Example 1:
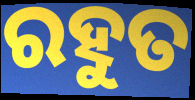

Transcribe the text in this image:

ରହୁତ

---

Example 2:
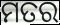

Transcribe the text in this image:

ମତର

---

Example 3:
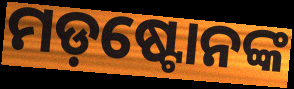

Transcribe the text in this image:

ମଡ଼ଷ୍ଟୋନଙ୍କ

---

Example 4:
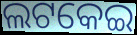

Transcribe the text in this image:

ଲଟକେଇ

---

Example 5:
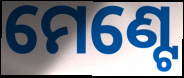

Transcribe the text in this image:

ମେଣ୍ଟେ